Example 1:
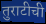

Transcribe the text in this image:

तुराटीची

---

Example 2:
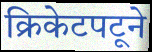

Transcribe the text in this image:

क्रिकेटपटूने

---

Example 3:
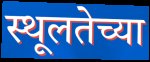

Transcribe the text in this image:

स्थूलतेच्या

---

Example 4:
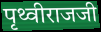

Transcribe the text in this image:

पृथ्वीराजजी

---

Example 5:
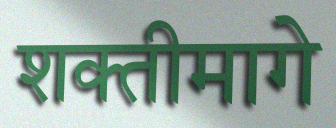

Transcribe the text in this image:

शक्तीमागे